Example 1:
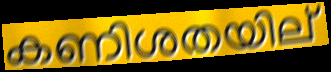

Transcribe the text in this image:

കണിശതയില്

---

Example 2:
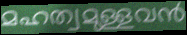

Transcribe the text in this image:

മഹത്വമുള്ളവൻ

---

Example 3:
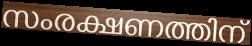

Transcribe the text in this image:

സംരക്ഷണത്തിന്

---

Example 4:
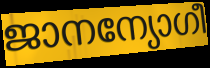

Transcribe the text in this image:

ജാനന്യോഗീ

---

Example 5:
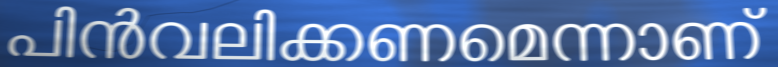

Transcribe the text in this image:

പിൻവലിക്കണമെന്നാണ്